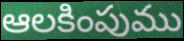
ఆలకింపుము